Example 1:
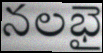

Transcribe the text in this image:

నలభై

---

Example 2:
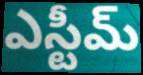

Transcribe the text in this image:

ఎస్టీమ్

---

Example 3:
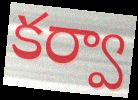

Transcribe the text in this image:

కర్వా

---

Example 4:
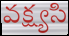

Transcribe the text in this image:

వక్ష్యసి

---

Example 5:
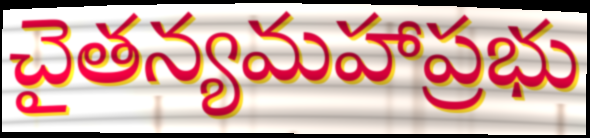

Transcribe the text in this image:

చైతన్యమహాప్రభు